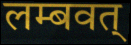
लम्बवत्